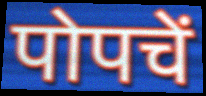
पोपचें